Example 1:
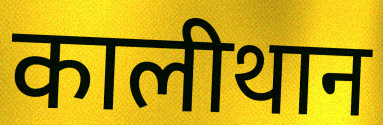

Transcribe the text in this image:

कालीथान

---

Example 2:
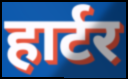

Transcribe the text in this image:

हार्टर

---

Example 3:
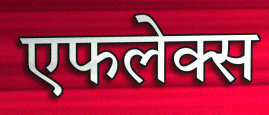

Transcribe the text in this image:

एफलेक्स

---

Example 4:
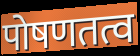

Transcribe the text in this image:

पोषणतत्व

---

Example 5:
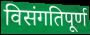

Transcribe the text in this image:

विसंगतिपूर्ण